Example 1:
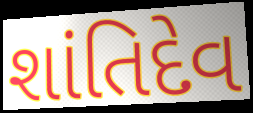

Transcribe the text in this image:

શાંતિદેવ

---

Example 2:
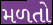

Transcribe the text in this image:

મળતો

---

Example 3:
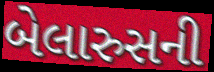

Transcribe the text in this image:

બેલારુસની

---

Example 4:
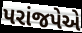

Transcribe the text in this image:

પરાંજપેએ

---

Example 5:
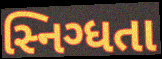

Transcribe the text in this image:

સ્નિગ્ધતા